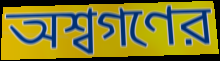
অশ্বগণের